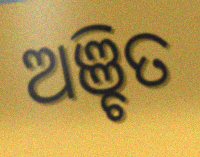
ଅଞ୍ଚିତ